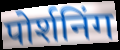
पोर्शनिंग